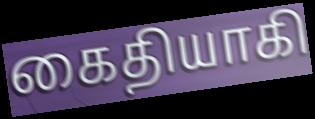
கைதியாகி